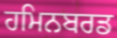
ਹਮਿਨਬਰਡ